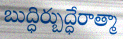
బుద్ధిర్బుద్ధేరాత్మా